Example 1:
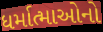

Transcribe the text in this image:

ધર્માત્માઓનો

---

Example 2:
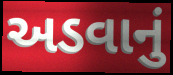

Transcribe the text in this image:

અડવાનું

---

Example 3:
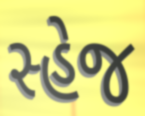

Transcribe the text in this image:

સ્હેજ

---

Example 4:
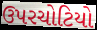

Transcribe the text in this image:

ઉપરચોટિયો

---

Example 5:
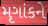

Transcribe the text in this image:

મૃગાંકને